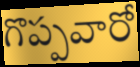
గొప్పవారో